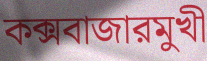
কক্সবাজারমুখী